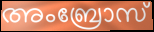
അംബ്രോസ്